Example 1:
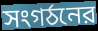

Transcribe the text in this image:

সংগঠনের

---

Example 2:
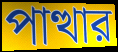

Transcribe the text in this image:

পাত্থার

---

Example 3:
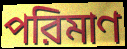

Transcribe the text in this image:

পরিমাণ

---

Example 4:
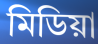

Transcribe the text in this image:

মিডিয়া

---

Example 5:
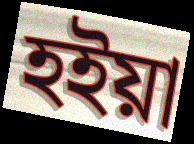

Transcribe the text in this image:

হইয়া